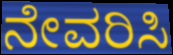
ನೇವರಿಸಿ